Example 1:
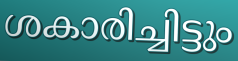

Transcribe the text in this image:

ശകാരിച്ചിട്ടും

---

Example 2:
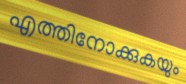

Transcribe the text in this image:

എത്തിനോക്കുകയും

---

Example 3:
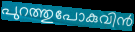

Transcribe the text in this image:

പുറത്തുപോകുവിൻ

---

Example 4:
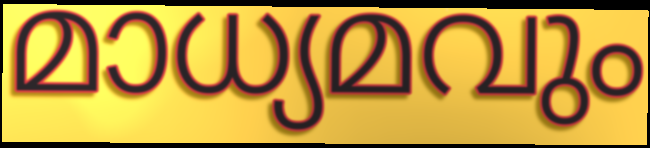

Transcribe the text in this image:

മാധ്യമവും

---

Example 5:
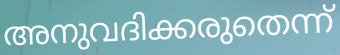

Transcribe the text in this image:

അനുവദിക്കരുതെന്ന്